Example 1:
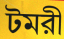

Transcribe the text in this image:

টমরী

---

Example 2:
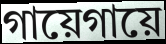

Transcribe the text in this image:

গায়েগায়ে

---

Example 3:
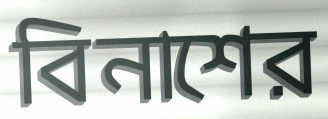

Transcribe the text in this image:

বিনাশের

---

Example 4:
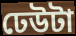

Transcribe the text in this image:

ঢেউটা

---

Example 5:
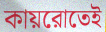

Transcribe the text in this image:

কায়রোতেই